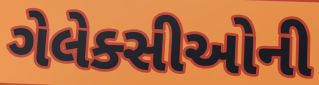
ગેલેક્સીઓની